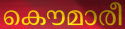
കൌമാരീ